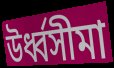
উর্ধ্বসীমা